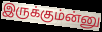
இருக்கும்ன்னு